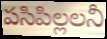
పసిపిల్లలనీ